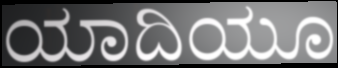
ಯಾದಿಯೂ